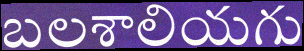
బలశాలియగు